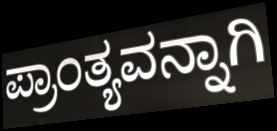
ಪ್ರಾಂತ್ಯವನ್ನಾಗಿ